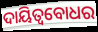
ଦାୟିତ୍ବବୋଧର